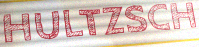
HULTZSCH